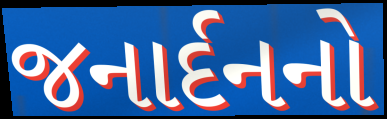
જનાર્દનનો